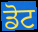
ਡੋਟ